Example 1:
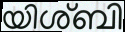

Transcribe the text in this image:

യിശ്ബി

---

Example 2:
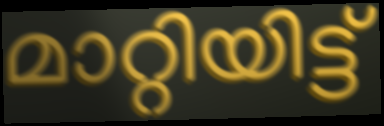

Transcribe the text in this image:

മാറ്റിയിട്ട്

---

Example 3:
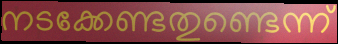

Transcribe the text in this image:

നടക്കേണ്ടതുണ്ടെന്ന്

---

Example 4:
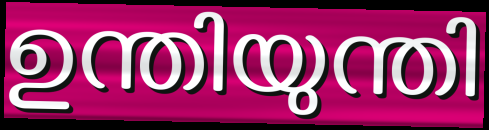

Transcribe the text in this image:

ഉന്തിയുന്തി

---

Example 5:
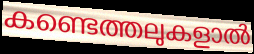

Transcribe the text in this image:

കണ്ടെത്തലുകളാൽ